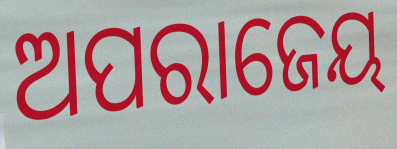
ଅପରାଜେୟ